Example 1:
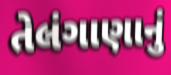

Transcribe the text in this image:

તેલંગાણાનું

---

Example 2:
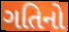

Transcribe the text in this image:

ગતિનો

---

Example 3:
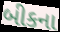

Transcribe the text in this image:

બીકના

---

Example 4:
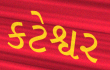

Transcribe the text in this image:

કટેશ્વર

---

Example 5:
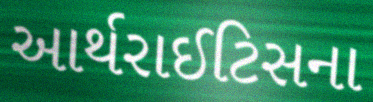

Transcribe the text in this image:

આર્થરાઈટિસના